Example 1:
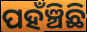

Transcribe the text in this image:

ପହଁଞ୍ଚିଛି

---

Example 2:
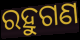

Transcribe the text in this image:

ରହୁଗଣ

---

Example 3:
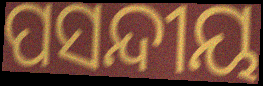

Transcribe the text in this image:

ପସନ୍ଦୀୟ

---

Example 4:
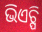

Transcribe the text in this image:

ଭିଏଚ୍ପି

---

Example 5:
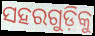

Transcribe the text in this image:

ସହରଗୁଡ଼ିକୁ